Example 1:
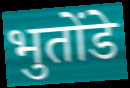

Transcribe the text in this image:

भुतोंडे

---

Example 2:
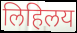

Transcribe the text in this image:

लिहिलय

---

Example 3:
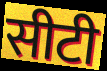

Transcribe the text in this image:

सीटी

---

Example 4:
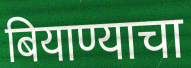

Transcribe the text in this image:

बियाण्याचा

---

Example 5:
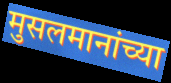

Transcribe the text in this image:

मुसलमानांच्या